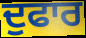
ਦੁਫਾਰ